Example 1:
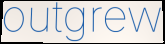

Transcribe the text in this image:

outgrew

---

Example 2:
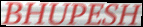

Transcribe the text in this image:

BHUPESH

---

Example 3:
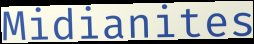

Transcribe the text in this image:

Midianites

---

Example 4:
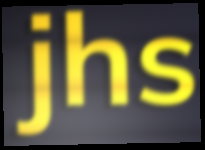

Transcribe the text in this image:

jhs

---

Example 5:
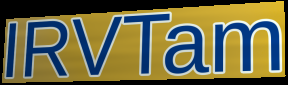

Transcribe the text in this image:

IRVTam